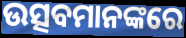
ଉତ୍ସବମାନଙ୍କରେ